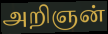
அறிஞன்